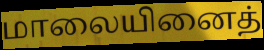
மாலையினைத்